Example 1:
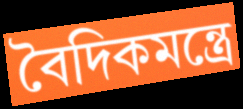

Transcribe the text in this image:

বৈদিকমন্ত্রে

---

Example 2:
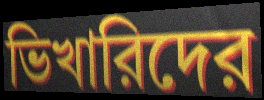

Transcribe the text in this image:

ভিখারিদের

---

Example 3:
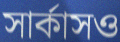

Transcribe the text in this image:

সার্কাসও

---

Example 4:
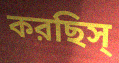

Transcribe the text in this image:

করছিস্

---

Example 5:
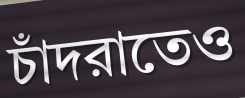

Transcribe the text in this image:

চাঁদরাতেও